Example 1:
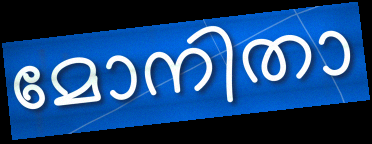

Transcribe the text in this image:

മോനിതാ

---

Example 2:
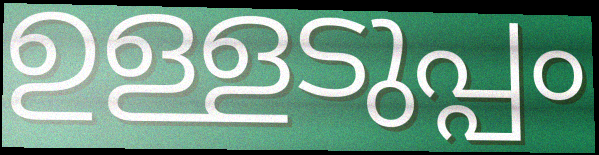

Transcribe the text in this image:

ഉള്ളടുപ്പം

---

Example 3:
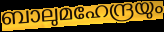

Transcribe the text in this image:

ബാലുമഹേന്ദ്രയും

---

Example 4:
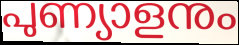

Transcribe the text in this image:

പുണ്യാളനും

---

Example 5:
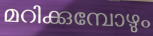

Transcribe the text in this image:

മറിക്കുമ്പോഴും